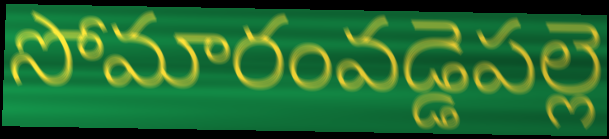
సోమారంవడ్డెపల్లె